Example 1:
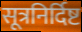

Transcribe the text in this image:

सूत्रनिर्दिष्ट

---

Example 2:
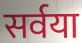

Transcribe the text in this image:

सर्वया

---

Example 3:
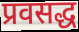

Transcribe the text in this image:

प्रवसद्ध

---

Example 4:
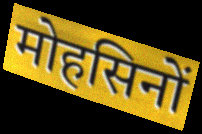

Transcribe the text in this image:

मोहसिनों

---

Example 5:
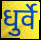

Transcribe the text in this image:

धुर्वे